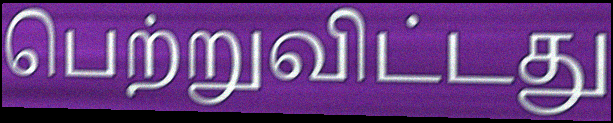
பெற்றுவிட்டது